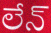
లేన్